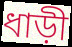
ধাড়ী